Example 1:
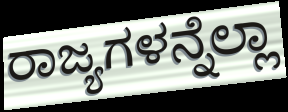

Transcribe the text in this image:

ರಾಜ್ಯಗಳನ್ನೆಲ್ಲಾ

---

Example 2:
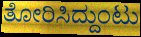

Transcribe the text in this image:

ತೋರಿಸಿದ್ದುಂಟು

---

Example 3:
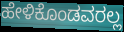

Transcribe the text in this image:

ಹೇಳಿಕೊಂಡವರಲ್ಲ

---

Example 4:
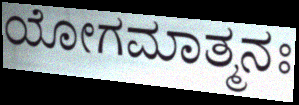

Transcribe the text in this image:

ಯೋಗಮಾತ್ಮನಃ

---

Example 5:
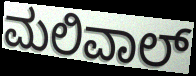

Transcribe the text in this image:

ಮಲಿವಾಲ್